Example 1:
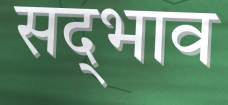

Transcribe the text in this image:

सद्‍भाव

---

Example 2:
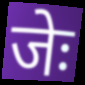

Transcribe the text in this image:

जेः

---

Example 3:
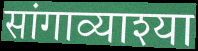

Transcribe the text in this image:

सांगाव्याश्या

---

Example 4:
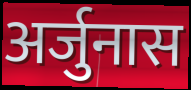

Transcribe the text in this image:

अर्जुनास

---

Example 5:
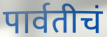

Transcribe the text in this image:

पार्वतीचं